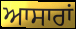
ਆਸਾਰਾਂ